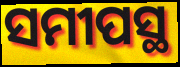
ସମୀପସ୍ଥ